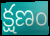
క్షణం